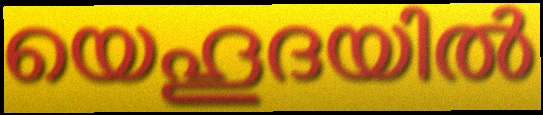
യെഹൂദയിൽ